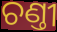
ଚଣ୍ତୀ